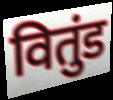
वितुंड